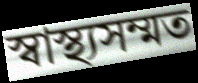
স্বাস্থ্যসম্মত